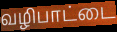
வழிபாட்டை